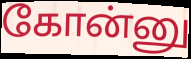
கோன்னு